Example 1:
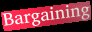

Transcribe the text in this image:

Bargaining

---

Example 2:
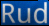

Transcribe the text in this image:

Rud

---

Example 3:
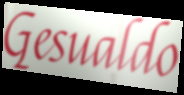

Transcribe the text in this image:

Gesualdo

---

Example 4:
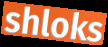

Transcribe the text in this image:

shloks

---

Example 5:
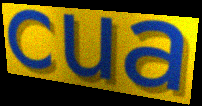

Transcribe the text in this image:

cua